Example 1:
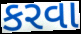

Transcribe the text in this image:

કરવા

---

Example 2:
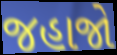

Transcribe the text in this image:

જહાજો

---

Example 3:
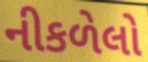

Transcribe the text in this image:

નીકળેલો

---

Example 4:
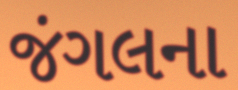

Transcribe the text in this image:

જંગલના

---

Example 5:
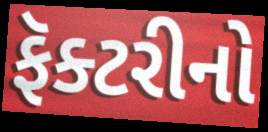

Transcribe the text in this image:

ફૅક્ટરીનો